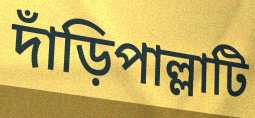
দাঁড়িপাল্লাটি